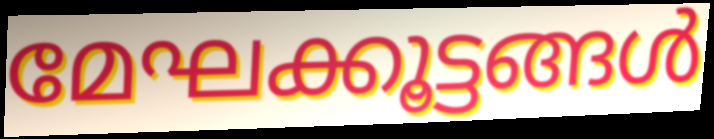
മേഘക്കൂട്ടങ്ങൾ